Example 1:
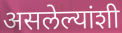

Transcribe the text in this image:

असलेल्यांशी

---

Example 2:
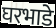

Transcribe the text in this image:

घरभाडे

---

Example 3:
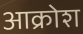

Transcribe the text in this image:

आक्रोश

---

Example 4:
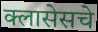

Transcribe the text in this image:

क्लासेसचे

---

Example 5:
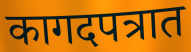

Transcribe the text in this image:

कागदपत्रात